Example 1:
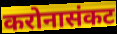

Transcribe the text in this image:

करोनासंकट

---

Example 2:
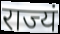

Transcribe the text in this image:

राज्यं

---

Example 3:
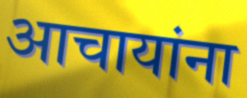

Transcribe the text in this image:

आचायांना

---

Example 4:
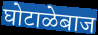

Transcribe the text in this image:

घोटाळेबाज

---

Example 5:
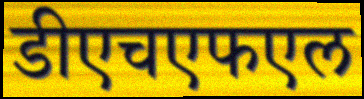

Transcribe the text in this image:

डीएचएफएल